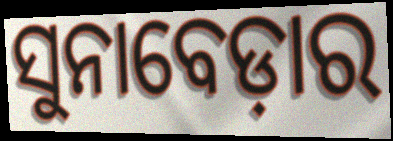
ସୁନାବେଡ଼ାର